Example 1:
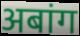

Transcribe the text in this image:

अबांग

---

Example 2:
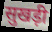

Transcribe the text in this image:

सुखड़ी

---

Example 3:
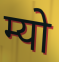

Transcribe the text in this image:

म्यो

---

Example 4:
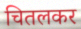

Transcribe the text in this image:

चितलकर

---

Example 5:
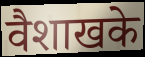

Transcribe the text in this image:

वैशाखके